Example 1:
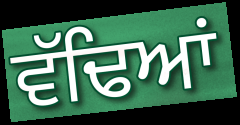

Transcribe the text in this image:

ਵੱਢਿਆਂ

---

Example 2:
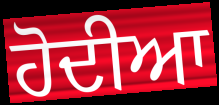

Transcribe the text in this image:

ਹੋਦੀਆ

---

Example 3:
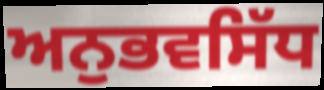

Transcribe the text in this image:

ਅਨੁਭਵਸਿੱਧ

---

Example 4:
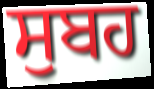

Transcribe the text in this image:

ਸੁਬਹ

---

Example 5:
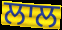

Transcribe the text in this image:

ਲਾਲ